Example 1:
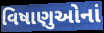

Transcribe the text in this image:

વિષાણુઓનાં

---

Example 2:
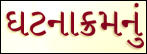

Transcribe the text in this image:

ઘટનાક્રમનું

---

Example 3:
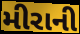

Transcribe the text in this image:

મીરાની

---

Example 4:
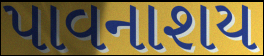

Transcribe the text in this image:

પાવનાશય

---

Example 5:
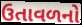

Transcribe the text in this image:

ઉતાવળનો